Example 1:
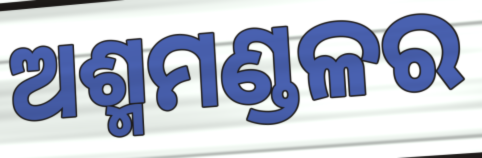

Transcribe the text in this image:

ଅଶ୍ମମଣ୍ଡଳର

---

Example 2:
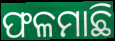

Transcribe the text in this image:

ଫଳମାଛି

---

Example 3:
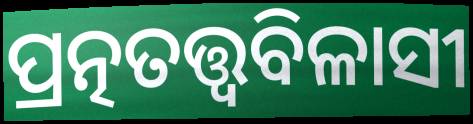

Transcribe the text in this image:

ପ୍ରତ୍ନତତ୍ତ୍ବବିଳାସୀ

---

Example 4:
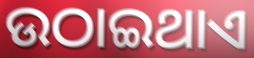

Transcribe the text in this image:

ଉଠାଇଥାଏ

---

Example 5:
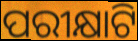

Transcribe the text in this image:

ପରୀକ୍ଷାଟି